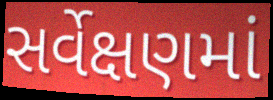
સર્વેક્ષણમાં